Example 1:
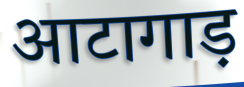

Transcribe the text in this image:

आटागाड़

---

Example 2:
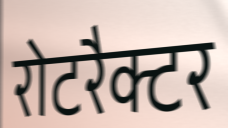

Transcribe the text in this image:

रोटरैक्टर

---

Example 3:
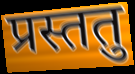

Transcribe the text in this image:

प्रस्ततु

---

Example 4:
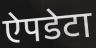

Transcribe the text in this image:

ऐपडेटा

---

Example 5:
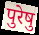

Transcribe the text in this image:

पुरेषु